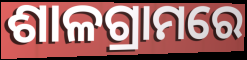
ଶାଳଗ୍ରାମରେ